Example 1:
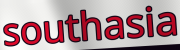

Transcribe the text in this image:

southasia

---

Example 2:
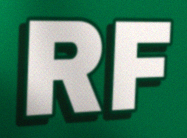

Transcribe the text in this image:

RF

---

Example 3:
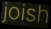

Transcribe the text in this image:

joish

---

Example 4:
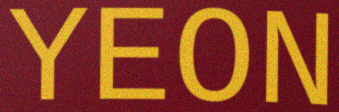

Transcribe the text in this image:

YEON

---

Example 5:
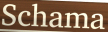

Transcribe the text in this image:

Schama